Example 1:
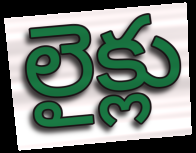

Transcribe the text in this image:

లైక్లు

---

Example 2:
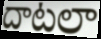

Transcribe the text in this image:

దాటలా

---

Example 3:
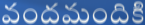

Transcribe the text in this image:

వందమందికి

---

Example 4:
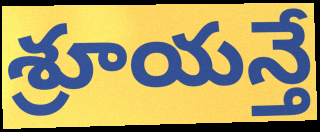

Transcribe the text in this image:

శ్రూయన్తే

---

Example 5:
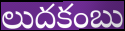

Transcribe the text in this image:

లుదకంబు